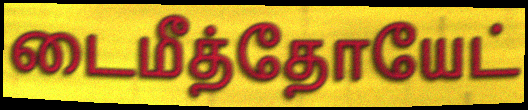
டைமீத்தோயேட்